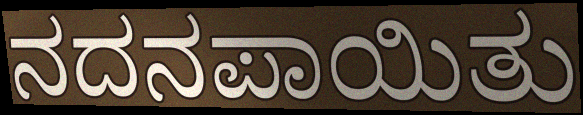
ನದನಪಾಯಿತು